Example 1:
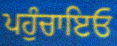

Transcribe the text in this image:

ਪਹੁੰਚਾਇਓ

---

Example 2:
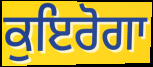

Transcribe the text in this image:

ਕੁਇਰੋਗਾ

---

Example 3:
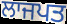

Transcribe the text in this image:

ਲਾਜਪਤ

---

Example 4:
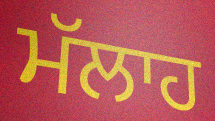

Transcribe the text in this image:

ਮੱਲਾਹ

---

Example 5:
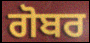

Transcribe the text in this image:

ਗੋਬਰ